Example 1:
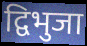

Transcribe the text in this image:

द्विभुजा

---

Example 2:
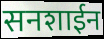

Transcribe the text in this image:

सनशाईन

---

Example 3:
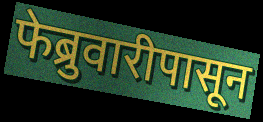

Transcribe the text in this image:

फेब्रुवारीपासून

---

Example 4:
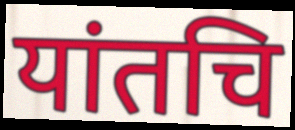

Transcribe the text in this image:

यांतचि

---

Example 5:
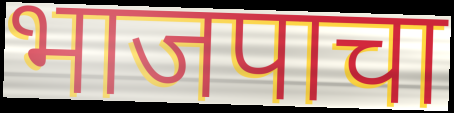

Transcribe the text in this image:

भाजपाचा